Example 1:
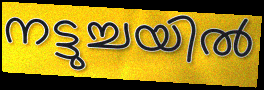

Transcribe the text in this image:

നട്ടുച്ചയിൽ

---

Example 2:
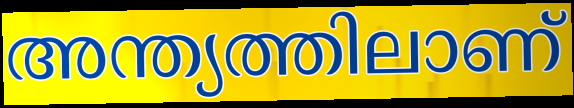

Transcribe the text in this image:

അന്ത്യത്തിലാണ്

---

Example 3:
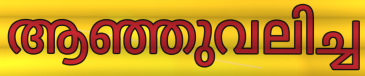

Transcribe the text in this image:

ആഞ്ഞുവലിച്ച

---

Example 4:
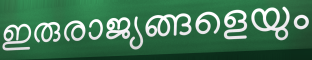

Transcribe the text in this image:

ഇരുരാജ്യങ്ങളെയും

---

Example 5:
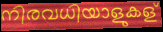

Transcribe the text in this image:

നിരവധിയാളുകള്